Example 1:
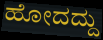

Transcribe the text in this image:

ಹೋದದ್ದು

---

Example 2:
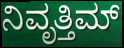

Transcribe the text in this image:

ನಿವೃತ್ತಿಮ್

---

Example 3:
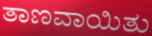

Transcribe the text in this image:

ತಾಣವಾಯಿತು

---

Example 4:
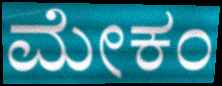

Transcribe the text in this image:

ಮೇಕಂ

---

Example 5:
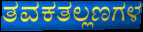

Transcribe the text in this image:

ತವಕತಲ್ಲಣಗಳ